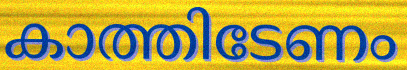
കാത്തിടേണം